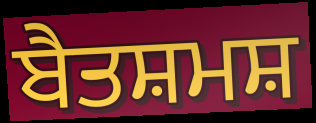
ਬੈਤਸ਼ਮਸ਼